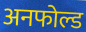
अनफोल्ड